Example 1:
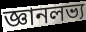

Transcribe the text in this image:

জ্ঞানলভ্য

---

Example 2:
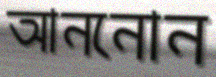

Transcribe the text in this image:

আননোন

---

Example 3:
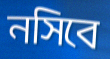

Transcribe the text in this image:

নসিবে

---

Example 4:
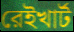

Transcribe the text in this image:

রেইখার্ট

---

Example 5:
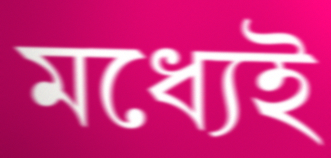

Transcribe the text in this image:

মধ্যেই